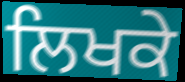
ਲਿਖਕੇ